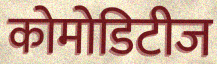
कोमोडिटीज